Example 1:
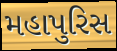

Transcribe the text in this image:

મહાપુરિસ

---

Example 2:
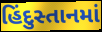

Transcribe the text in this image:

હિંદુસ્તાનમાં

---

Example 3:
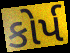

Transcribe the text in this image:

કોર્પ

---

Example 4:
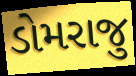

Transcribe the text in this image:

ડોમરાજુ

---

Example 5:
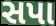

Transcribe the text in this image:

સપા